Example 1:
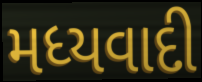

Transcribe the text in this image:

મધ્યવાદી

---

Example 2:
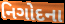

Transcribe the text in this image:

નિગોદના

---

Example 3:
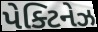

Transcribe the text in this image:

પેક્ટિનેઝ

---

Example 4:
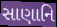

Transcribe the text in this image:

સાણાનિ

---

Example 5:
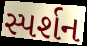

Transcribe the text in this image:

સ્પર્શન